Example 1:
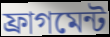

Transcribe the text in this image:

ফ্ৰাগমেন্ট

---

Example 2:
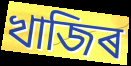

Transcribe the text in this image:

খাজিৰ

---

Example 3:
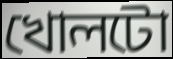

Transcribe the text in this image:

খোলটো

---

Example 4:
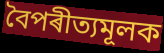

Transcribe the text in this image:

বৈপৰীত্যমূলক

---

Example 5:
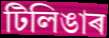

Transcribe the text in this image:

টিলিঙাৰ